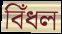
বিঁধল